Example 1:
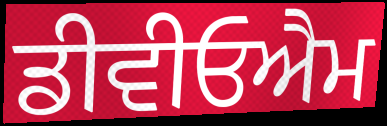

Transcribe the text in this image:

ਡੀਵੀਓਐਮ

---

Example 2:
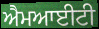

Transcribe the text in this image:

ਐਮਆਈਟੀ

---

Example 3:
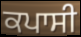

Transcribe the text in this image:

ਕਪਾਸੀ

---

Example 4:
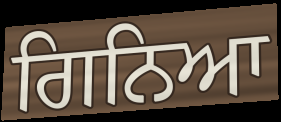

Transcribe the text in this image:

ਗਿਨਿਆ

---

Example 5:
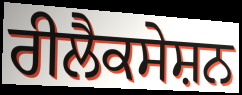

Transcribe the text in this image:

ਰੀਲੈਕਸੇਸ਼ਨ